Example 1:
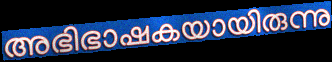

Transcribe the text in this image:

അഭിഭാഷകയായിരുന്നു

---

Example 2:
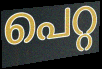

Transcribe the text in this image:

പെറ്റ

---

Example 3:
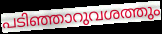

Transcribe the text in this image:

പടിഞ്ഞാറുവശത്തും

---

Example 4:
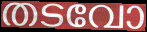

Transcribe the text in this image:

തടവോ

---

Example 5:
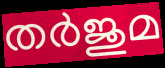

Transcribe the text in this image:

തർജുമ